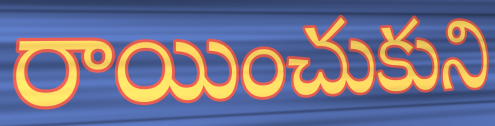
రాయించుకుని